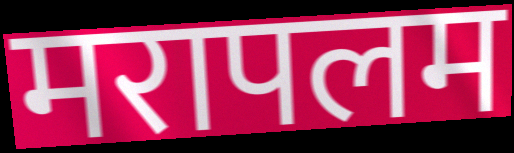
मरापलम